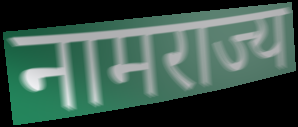
नामराज्य